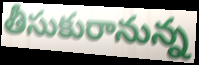
తీసుకురానున్న